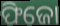
ଫିଜୋ